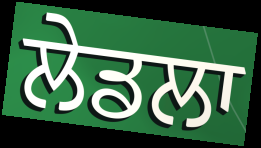
ਲੇਡਲਾ